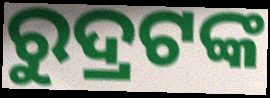
ରୁଦ୍ରଟଙ୍କ